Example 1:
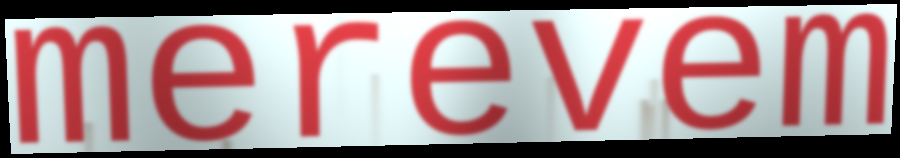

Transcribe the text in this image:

merevem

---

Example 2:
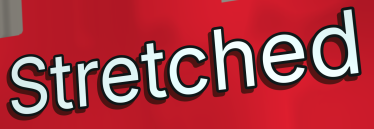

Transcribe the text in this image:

Stretched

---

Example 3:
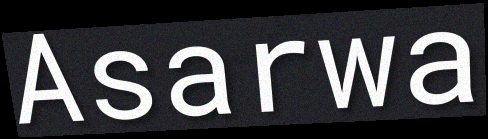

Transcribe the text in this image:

Asarwa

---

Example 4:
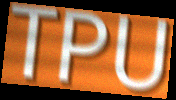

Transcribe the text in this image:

TPU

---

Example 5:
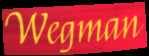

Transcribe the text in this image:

Wegman